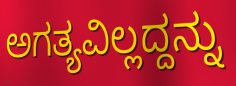
ಅಗತ್ಯವಿಲ್ಲದ್ದನ್ನು